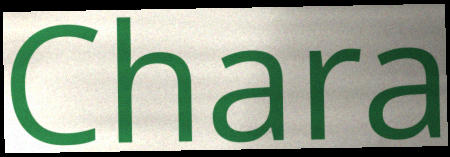
Chara